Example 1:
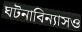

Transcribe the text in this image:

ঘটনাবিন্যাসও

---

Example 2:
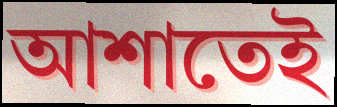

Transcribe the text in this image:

আশাতেই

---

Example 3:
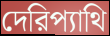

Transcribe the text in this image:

দেরিপ্যাথি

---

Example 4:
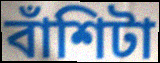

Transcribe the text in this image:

বাঁশিটা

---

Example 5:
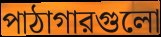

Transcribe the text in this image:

পাঠাগারগুলো